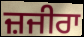
ਜ਼ਜੀਰਾ